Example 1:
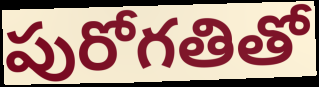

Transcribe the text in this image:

పురోగతితో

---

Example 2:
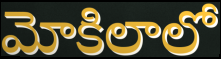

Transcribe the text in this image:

మోకిలాలో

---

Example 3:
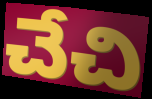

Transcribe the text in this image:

చేచి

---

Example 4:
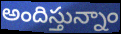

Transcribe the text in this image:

అందిస్తున్నాం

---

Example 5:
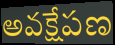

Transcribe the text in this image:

అవక్షేపణ